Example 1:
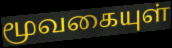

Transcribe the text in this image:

மூவகையுள்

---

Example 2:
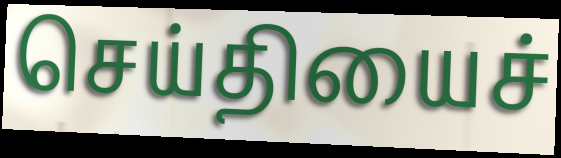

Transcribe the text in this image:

செய்தியைச்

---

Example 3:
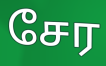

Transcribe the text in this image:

சேர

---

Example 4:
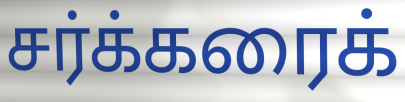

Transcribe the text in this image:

சர்க்கரைக்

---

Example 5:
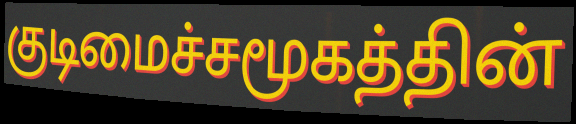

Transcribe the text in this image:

குடிமைச்சமூகத்தின்